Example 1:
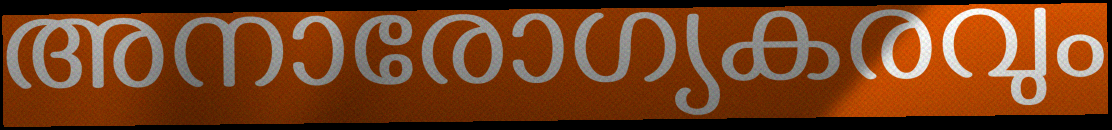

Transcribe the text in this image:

അനാരോഗ്യകരവും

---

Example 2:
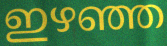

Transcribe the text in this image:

ഇഴഞ്ഞ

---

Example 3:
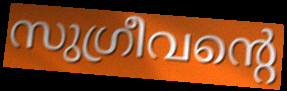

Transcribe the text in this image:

സുഗ്രീവന്റെ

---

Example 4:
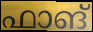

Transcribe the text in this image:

ഫാങ്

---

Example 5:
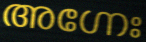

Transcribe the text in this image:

അഗ്നേഃ